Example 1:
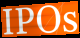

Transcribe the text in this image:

IPOs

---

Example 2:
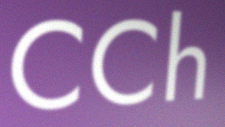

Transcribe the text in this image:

CCh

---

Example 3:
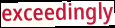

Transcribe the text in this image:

exceedingly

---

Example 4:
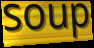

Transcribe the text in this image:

soup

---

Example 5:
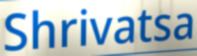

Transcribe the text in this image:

Shrivatsa